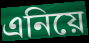
এনিয়ে